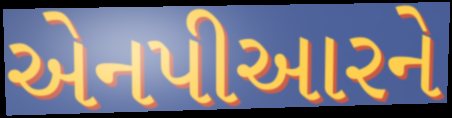
એનપીઆરને